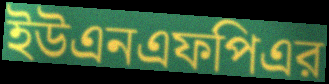
ইউএনএফপিএর